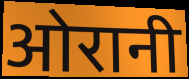
ओरानी